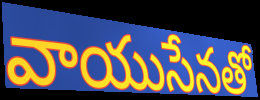
వాయుసేనతో